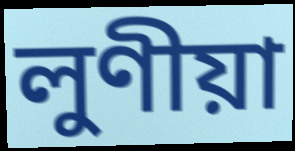
লুণীয়া